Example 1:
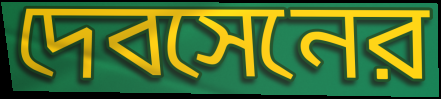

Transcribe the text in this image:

দেবসেনের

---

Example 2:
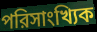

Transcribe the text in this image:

পরিসাংখ্যিক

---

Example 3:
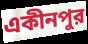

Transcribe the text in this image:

একীনপুর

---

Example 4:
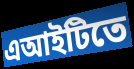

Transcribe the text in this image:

এআইটিতে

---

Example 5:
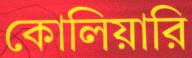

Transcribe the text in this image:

কোলিয়ারি